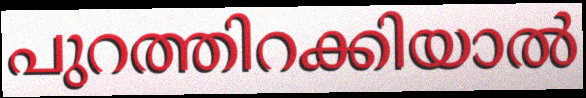
പുറത്തിറക്കിയാൽ